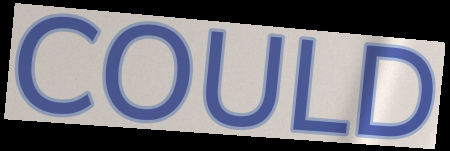
COULD